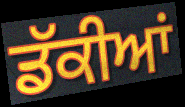
ਡੱਕੀਆਂ